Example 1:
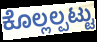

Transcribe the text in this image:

ಕೊಲ್ಲಲ್ಪಟ್ಟು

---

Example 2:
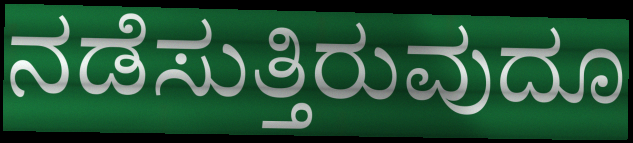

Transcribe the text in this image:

ನಡೆಸುತ್ತಿರುವುದೂ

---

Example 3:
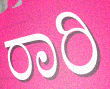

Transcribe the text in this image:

ರಾರಿ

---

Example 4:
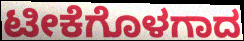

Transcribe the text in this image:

ಟೀಕೆಗೊಳಗಾದ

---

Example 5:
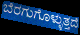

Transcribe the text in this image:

ಬೆರಗುಗೊಳ್ಳುತ್ತದೆ